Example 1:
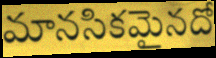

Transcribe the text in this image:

మానసికమైనదో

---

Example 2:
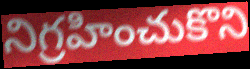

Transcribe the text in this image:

నిగ్రహించుకొని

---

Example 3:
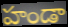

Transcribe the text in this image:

హండా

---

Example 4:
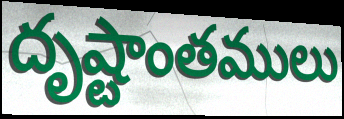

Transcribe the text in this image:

దృష్టాంతములు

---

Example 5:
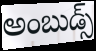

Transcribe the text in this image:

అంబుడ్స్